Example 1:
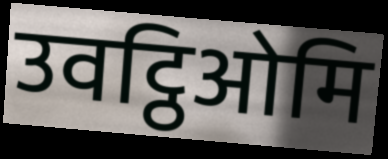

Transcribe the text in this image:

उवट्ठिओमि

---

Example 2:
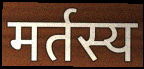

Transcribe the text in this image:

मर्तस्य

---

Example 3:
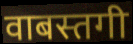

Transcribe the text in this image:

वाबस्तगी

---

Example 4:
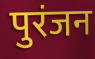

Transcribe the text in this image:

पुरंजन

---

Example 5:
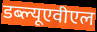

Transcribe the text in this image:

डब्ल्यूएवीएल